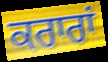
ਕਰਾਰਾਂ